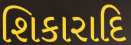
શિકારાદિ